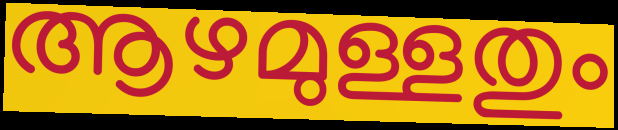
ആഴമുള്ളതും